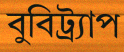
বুবিট্র্যাপ